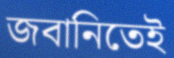
জবানিতেই